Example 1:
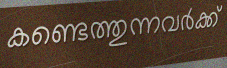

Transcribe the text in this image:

കണ്ടെത്തുന്നവർക്ക്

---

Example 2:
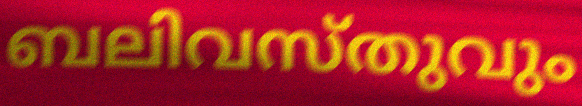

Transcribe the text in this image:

ബലിവസ്തുവും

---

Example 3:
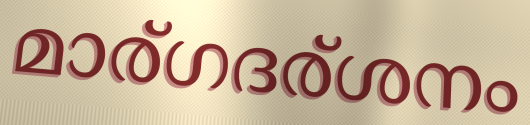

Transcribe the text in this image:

മാര്ഗദര്ശനം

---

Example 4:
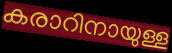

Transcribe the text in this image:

കരാറിനായുള്ള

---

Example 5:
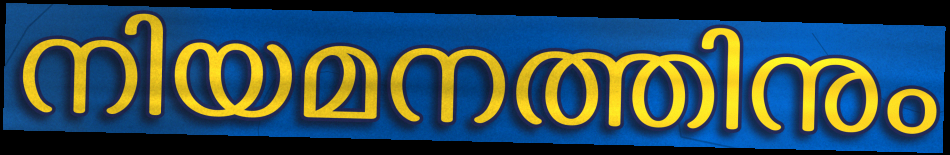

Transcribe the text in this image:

നിയമനത്തിനും